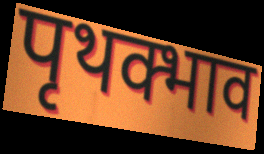
पृथक्भाव